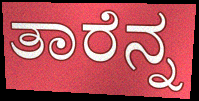
ತಾರೆನ್ನ